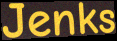
Jenks